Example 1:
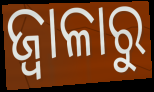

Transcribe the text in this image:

ଜ୍ଵାଳାରୁ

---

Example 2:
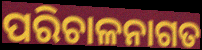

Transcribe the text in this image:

ପରିଚାଳନାଗତ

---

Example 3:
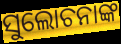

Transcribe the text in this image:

ସୁଲୋଚନାଙ୍କ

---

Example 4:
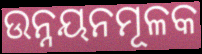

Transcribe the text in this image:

ଉନ୍ନୟନମୂଳକ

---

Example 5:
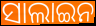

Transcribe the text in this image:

ସାଲାଇନ